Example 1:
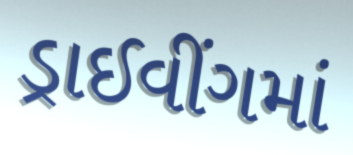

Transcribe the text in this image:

ડ્રાઈવીંગમાં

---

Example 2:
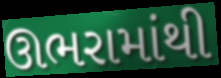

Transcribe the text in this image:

ઊભરામાંથી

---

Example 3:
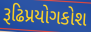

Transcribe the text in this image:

રૂઢિપ્રયોગકોશ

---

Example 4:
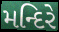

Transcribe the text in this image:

મન્દિરે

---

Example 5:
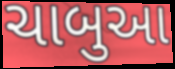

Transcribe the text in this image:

ચાબુઆ